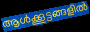
ആൾക്കൂട്ടങ്ങളിൽ